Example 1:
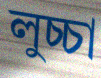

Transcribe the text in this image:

লুচ্চা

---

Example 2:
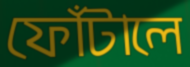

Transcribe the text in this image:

ফোঁটালে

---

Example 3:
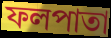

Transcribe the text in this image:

ফলপাতা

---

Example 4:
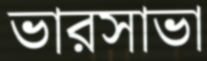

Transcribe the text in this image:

ভারসাভা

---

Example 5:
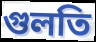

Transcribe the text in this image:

গুলতি